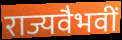
राज्यवैभवीं